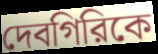
দেবগিরিকে